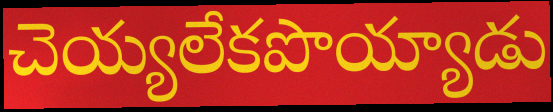
చెయ్యలేకపొయ్యాడు